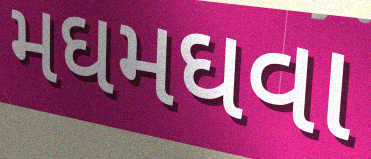
મઘમઘવા